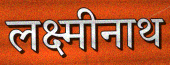
लक्ष्मीनाथ